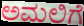
ಅಮಲಿಗೆ